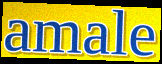
amale